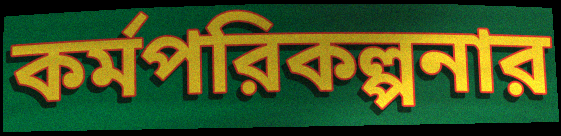
কর্মপরিকল্পনার